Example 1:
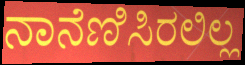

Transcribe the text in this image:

ನಾನೆಣಿಸಿರಲಿಲ್ಲ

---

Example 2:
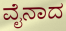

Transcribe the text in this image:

ವೈನಾದ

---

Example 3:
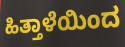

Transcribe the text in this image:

ಹಿತ್ತಾಳೆಯಿಂದ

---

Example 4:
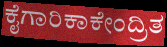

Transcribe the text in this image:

ಕೈಗಾರಿಕಾಕೇಂದ್ರಿತ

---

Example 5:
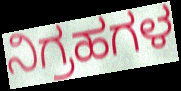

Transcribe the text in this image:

ನಿಗ್ರಹಗಳ